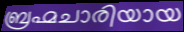
ബ്രഹ്മചാരിയായ